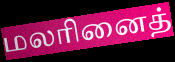
மலரினைத்